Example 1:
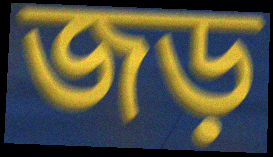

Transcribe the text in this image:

জড়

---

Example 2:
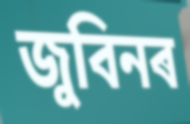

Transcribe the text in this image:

জুবিনৰ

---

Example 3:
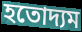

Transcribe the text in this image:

হতোদ্যম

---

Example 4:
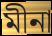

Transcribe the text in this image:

মীনা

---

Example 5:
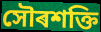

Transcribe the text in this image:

সৌৰশক্তি